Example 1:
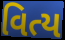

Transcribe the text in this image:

વિત્ય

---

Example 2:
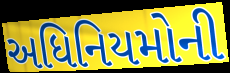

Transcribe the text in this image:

અધિનિયમોની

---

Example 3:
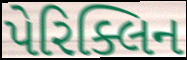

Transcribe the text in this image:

પેરિક્લિન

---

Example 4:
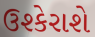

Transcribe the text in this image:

ઉશ્કેરાશે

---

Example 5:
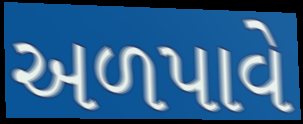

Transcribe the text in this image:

અળપાવે